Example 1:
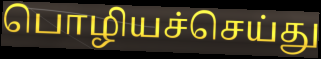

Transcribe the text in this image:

பொழியச்செய்து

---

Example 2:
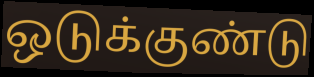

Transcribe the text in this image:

ஒடுக்குண்டு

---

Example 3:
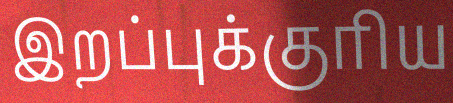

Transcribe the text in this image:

இறப்புக்குரிய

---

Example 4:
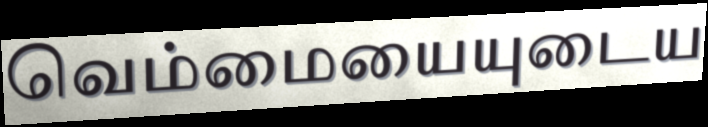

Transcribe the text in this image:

வெம்மையையுடைய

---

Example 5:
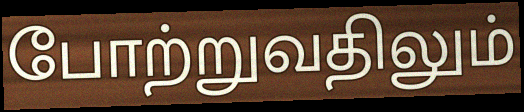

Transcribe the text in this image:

போற்றுவதிலும்